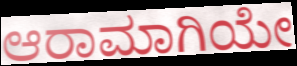
ಆರಾಮಾಗಿಯೇ